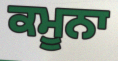
ਕਮੂਨਾ